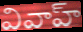
వివాహ్